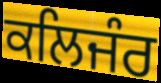
ਕਲਿਜੰਰ